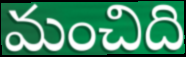
మంచిది